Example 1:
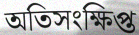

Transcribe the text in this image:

অতিসংক্ষিপ্ত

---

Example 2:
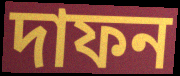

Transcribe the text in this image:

দাফন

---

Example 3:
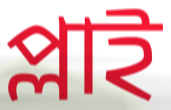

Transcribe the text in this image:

প্লাই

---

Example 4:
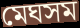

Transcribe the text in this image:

মেঘসম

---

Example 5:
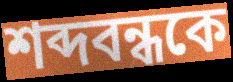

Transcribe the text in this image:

শব্দবন্ধকে